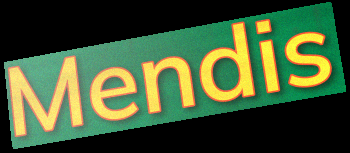
Mendis